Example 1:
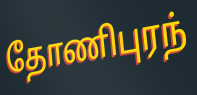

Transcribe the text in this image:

தோணிபுரந்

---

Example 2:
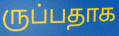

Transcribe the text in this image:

ருப்பதாக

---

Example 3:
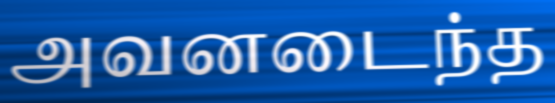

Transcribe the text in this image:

அவனடைந்த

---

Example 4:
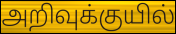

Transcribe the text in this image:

அறிவுக்குயில்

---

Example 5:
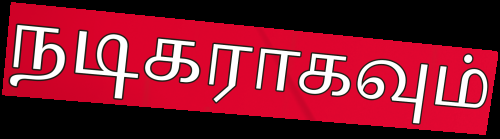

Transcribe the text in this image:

நடிகராகவும்